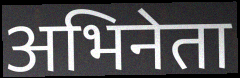
अभिनेता